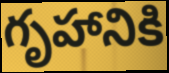
గృహానికి